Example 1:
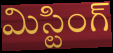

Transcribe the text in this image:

మిస్టింగ్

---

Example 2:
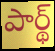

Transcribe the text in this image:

పార్థ్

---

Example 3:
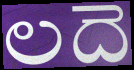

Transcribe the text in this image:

లదె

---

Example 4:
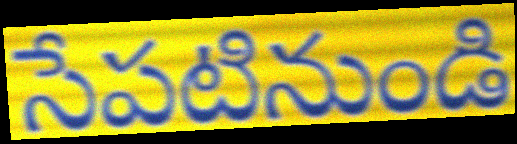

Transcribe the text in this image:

సేపటినుండి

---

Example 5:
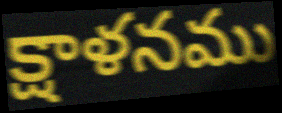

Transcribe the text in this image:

క్షాళనము